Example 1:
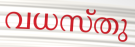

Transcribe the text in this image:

വധസ്തു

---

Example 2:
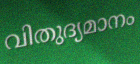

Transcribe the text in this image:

വിതുദ്യമാനം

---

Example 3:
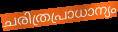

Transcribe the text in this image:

ചരിത്രപ്രാധാന്യം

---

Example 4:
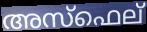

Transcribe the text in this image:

അസ്ഫെല്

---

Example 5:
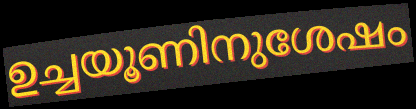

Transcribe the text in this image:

ഉച്ചയൂണിനുശേഷം